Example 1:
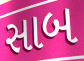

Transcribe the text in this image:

સાબ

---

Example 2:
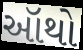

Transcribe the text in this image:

ઑથો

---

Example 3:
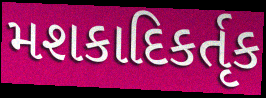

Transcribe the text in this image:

મશકાદિકર્તૃક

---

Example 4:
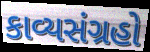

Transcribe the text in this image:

કાવ્યસંગ્રહો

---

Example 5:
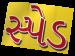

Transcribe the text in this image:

સ્પેડ